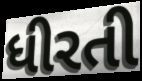
ધીરતી